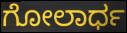
ಗೋಲಾರ್ಧ